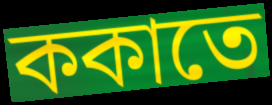
ককাতে